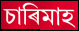
চাৰিমাহ